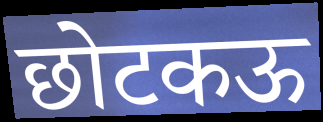
छोटकऊ